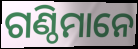
ଗଣ୍ଠିମାନେ